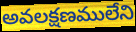
అవలక్షణములేని